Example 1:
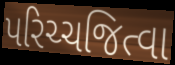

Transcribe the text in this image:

પરિચ્ચજિત્વા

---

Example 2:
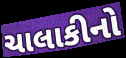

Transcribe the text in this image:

ચાલાકીનો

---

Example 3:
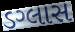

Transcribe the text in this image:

ડગ્લાસ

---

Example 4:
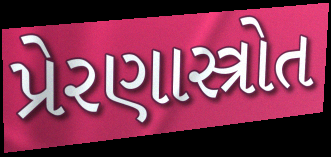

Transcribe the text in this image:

પ્રેરણાસ્ત્રોત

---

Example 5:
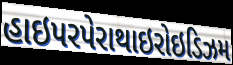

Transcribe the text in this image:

હાઇપરપેરાથાઇરોઇડિઝમ